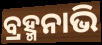
ବ୍ରହ୍ମନାଭି